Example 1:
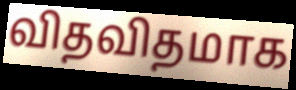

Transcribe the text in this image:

விதவிதமாக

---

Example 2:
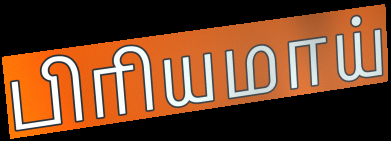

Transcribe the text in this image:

பிரியமாய்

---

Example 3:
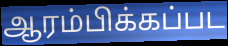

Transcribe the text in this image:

ஆரம்பிக்கப்பட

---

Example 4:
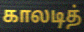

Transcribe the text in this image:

காலடித்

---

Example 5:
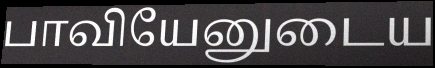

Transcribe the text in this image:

பாவியேனுடைய